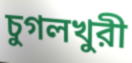
চুগলখুরী